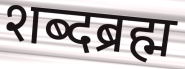
शब्दब्रह्म